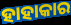
ହାହାକାର